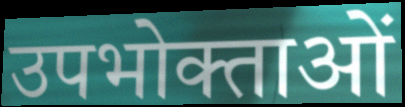
उपभोक्ताओं